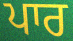
ਪਾਰ